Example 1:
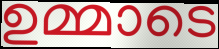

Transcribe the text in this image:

ഉമ്മാടെ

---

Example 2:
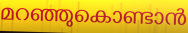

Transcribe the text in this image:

മറഞ്ഞുകൊണ്ടാൻ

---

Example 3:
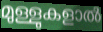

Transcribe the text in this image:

മുള്ളുകളാൽ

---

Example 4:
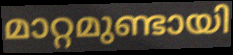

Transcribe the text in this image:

മാറ്റമുണ്ടായി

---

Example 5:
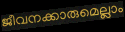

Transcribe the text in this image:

ജീവനക്കാരുമെല്ലാം